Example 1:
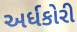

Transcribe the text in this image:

અર્ધકોરી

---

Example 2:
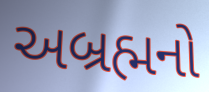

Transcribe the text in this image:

અબ્રહ્મનો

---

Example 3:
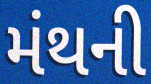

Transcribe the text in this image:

મંથની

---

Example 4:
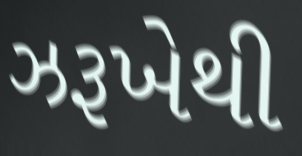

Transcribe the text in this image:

ઝરૂખેથી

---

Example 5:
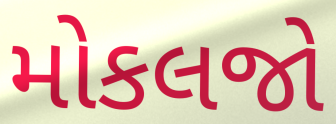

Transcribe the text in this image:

મોકલજો